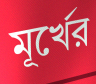
মূর্খের